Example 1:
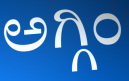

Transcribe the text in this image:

ಅಗ್ಗಿಂ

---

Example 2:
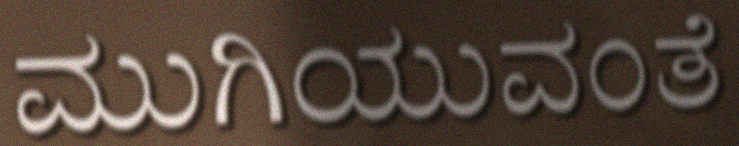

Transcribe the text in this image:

ಮುಗಿಯುವಂತೆ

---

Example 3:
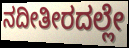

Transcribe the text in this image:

ನದೀತೀರದಲ್ಲೇ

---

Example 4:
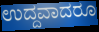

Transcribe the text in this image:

ಉದ್ದವಾದರೂ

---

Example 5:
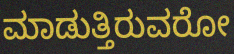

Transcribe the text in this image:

ಮಾಡುತ್ತಿರುವರೋ